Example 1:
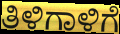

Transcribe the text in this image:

ತಿಳಿಗಾಳಿಗೆ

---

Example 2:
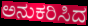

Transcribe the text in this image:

ಅನುಕರಿಸಿದ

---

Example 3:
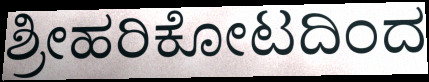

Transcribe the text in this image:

ಶ್ರೀಹರಿಕೋಟದಿಂದ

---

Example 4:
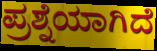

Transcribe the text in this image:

ಪ್ರಶ್ನೆಯಾಗಿದೆ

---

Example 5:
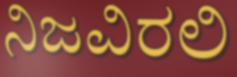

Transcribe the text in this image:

ನಿಜವಿರಲಿ